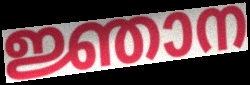
ജ്ഞാന